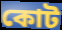
কোট